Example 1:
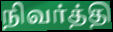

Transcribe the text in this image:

நிவர்த்தி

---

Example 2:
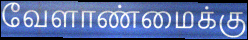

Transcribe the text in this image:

வேளாண்மைக்கு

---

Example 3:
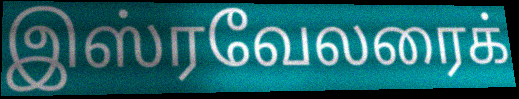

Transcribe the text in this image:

இஸ்ரவேலரைக்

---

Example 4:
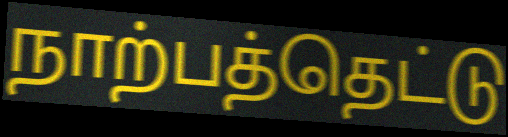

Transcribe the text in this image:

நாற்பத்தெட்டு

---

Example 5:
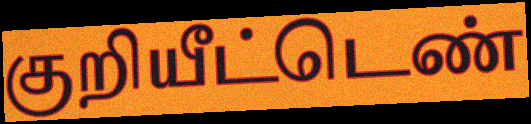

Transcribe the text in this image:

குறியீட்டெண்